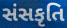
સંસકૃતિ